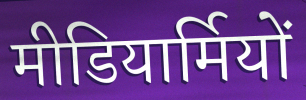
मीडियार्मियों